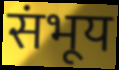
संभूय